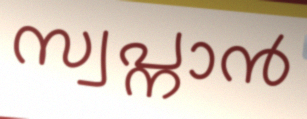
സ്വപ്നാൻ